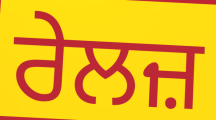
ਰੇਲਜ਼